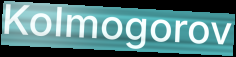
Kolmogorov